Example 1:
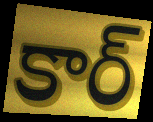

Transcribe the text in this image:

కార్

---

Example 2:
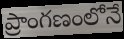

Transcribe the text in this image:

ప్రాంగణంలోనే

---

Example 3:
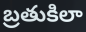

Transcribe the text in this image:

బ్రతుకిలా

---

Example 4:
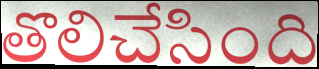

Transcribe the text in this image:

తొలిచేసింది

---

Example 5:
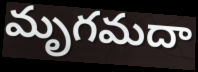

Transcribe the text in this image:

మృగమదా